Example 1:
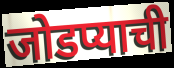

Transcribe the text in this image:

जोडप्याची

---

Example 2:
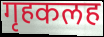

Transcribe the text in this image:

गृहकलह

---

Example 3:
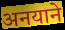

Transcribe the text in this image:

अनयाने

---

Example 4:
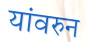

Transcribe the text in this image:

यांवरुन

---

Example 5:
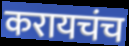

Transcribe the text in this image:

करायचंच